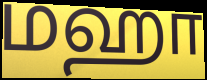
மஹா